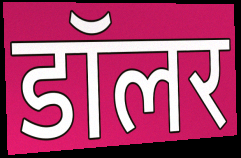
डॉलर